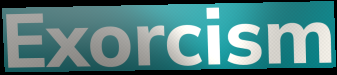
Exorcism